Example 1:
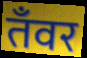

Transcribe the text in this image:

तँवर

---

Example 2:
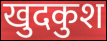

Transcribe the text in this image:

खुदकुश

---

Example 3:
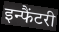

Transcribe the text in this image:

इन्फैंटरी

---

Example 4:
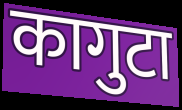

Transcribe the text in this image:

कागुटा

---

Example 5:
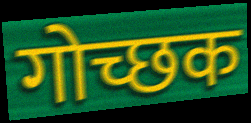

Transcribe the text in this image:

गोच्छक